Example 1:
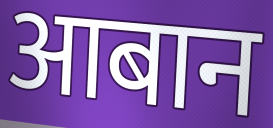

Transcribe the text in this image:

आबान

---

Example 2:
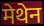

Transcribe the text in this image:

मेथेन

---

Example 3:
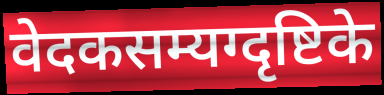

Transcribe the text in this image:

वेदकसम्यग्दृष्टिके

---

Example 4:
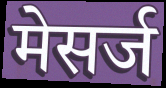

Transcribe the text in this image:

मेसर्ज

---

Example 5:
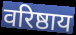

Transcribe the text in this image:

वरिष्ठाय